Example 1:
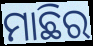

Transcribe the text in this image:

ମାଛିର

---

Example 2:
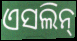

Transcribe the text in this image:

ଏସଲିନ୍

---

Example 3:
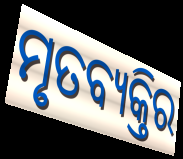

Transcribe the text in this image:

ମୃତବ୍ୟକ୍ତିର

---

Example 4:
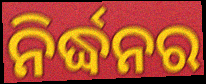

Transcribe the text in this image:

ନିର୍ଦ୍ଧନର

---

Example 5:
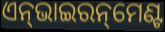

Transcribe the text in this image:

ଏନ୍‌ଭାଇରନ୍‌ମେଣ୍ଟ